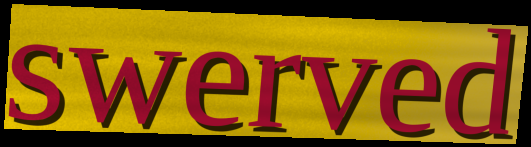
swerved